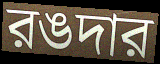
রঙদার